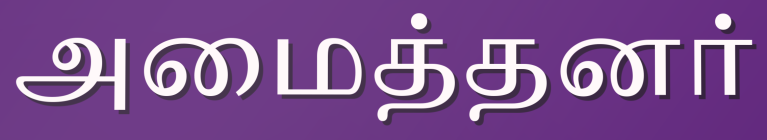
அமைத்தனர்